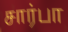
சார்பா